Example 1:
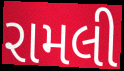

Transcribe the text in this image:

રામલી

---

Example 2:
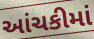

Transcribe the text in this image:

આંચકીમાં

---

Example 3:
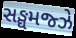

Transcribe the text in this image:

સઙ્ઘમજ્ઝે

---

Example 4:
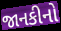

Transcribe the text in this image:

જાનકીનો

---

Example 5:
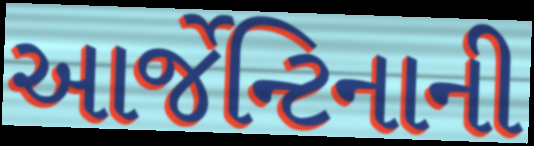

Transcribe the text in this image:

આર્જેન્ટિનાની